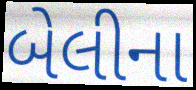
બેલીના